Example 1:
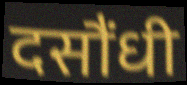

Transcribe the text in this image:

दसौंधी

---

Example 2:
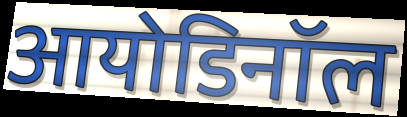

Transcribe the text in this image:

आयोडिनॉल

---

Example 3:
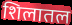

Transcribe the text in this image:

शिलातल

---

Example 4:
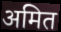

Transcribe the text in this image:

अमित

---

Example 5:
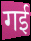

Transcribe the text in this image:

गई